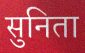
सुनिता